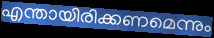
എന്തായിരിക്കണമെന്നും